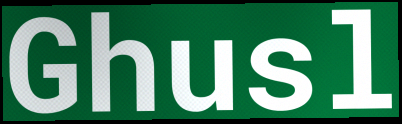
Ghusl